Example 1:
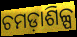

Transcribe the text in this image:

ଚମଡ଼ାଶିଳ୍ପ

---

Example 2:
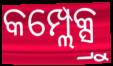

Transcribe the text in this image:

କମ୍ପ୍ଲେକ୍ସ୍ରୁ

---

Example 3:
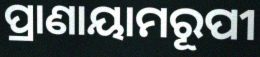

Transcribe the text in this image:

ପ୍ରାଣାୟାମରୂପୀ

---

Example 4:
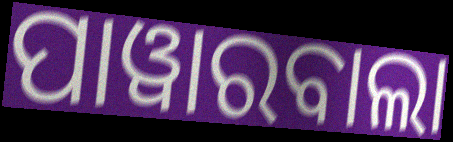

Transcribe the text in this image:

ପାୱାରବାଲା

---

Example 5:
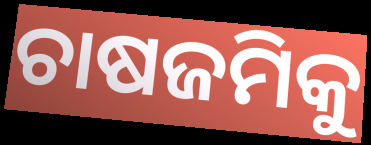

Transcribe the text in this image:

ଚାଷଜମିକୁ